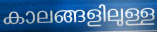
കാലങ്ങളിലുള്ള